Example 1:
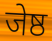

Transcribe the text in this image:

जेष्ठ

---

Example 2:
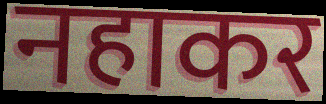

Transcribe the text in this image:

नहाकर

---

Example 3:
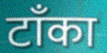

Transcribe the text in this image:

टाँका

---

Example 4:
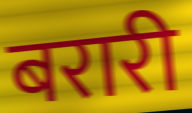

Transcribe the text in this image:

बरारी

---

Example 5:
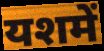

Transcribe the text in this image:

यशमें